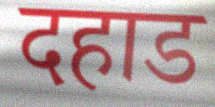
दहाड